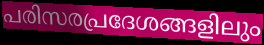
പരിസരപ്രദേശങ്ങളിലും